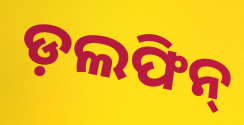
ଡ଼ଲଫିନ୍